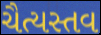
ચૈત્યસ્તવ